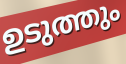
ഉടുത്തും